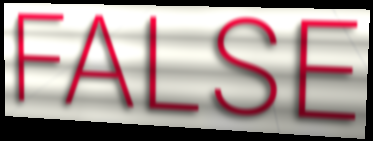
FALSE